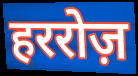
हररोज़